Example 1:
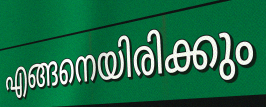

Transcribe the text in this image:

എങ്ങനെയിരിക്കും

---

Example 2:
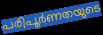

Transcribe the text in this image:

പരിപൂർണതയുടെ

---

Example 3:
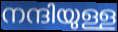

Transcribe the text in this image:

നന്ദിയുള്ള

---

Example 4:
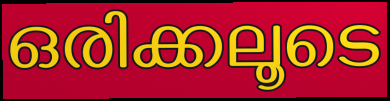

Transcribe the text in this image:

ഒരിക്കലൂടെ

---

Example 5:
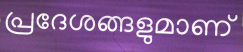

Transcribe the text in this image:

പ്രദേശങ്ങളുമാണ്